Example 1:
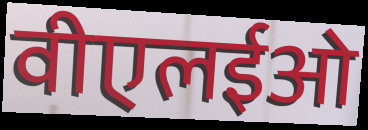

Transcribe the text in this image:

वीएलईओ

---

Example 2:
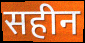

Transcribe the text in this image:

सहीन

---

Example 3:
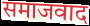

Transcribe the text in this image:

समाजवाद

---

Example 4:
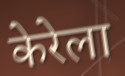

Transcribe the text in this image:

केरेला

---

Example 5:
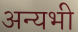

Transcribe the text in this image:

अन्यभी